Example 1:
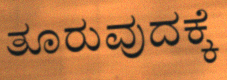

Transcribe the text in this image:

ತೂರುವುದಕ್ಕೆ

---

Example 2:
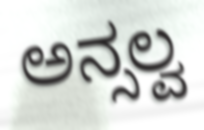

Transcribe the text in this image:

ಅನ್ಸಲ್ವ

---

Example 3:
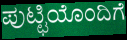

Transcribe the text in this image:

ಪುಟ್ಟಿಯೊಂದಿಗೆ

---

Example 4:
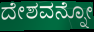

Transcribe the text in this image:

ದೇಶವನ್ನೋ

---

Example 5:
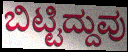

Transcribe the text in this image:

ಬಿಟ್ಟಿದ್ದುವು